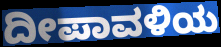
ದೀಪಾವಳಿಯ